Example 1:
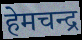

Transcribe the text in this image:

हेमचन्द्र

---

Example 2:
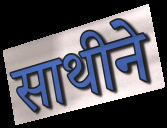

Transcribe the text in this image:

साथीने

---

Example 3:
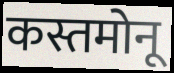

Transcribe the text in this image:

कस्तमोनू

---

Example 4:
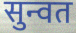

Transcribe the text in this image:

सुन्वत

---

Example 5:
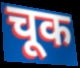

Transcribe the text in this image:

चूक